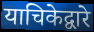
याचिकेद्वारे